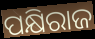
ପକ୍ଷିରାଜ